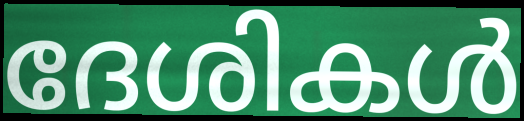
ദേശികൾ